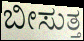
ಬೀಸುತ್ತ